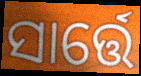
ସାର୍ତ୍ତେ